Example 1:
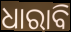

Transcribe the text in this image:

ଧାରାବି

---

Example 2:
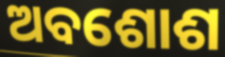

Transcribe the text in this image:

ଅବଶୋଶ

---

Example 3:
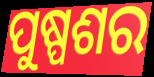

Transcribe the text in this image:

ପୁଷ୍ପଶର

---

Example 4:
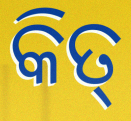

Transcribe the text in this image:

କିତ୍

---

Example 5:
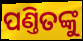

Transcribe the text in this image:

ପଣ୍ତିତଙ୍କୁ